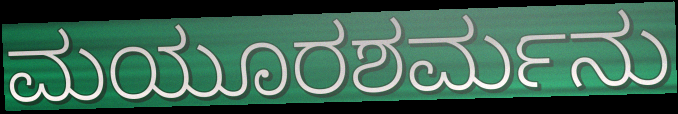
ಮಯೂರಶರ್ಮನು